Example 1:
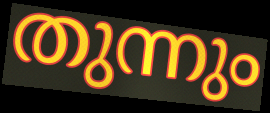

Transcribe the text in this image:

തുന്നും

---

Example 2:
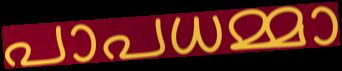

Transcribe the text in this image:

പാപധമ്മാ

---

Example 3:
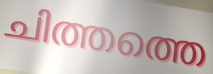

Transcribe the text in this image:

ചിത്തത്തെ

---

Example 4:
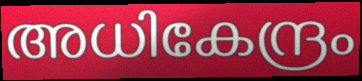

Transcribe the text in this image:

അധികേന്ദ്രം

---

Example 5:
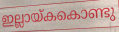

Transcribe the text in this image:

ഇല്ലായ്കകൊണ്ടു